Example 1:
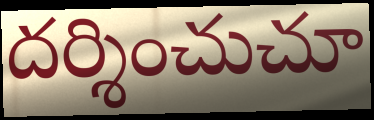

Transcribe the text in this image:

దర్శించుచూ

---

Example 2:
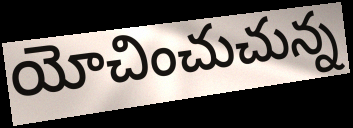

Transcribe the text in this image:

యోచించుచున్న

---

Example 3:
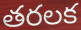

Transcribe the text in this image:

తరలక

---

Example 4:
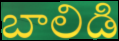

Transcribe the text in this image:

బాలిడి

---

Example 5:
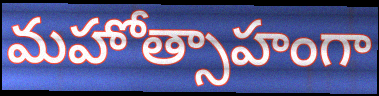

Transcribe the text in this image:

మహోత్సాహంగా